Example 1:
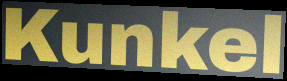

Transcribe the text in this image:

Kunkel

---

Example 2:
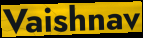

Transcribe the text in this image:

Vaishnav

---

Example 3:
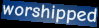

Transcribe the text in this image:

worshipped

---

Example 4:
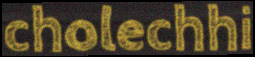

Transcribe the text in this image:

cholechhi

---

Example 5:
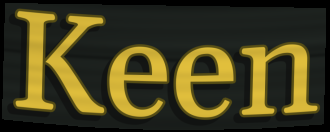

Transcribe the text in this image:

Keen